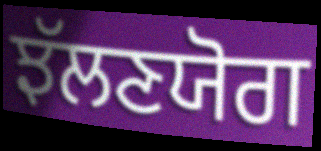
ਝੱਲਣਯੋਗ